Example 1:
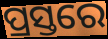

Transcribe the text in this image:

ପ୍ରସ୍ତରେ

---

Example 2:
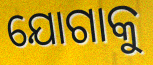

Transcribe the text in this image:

ଯୋଗାକୁ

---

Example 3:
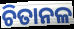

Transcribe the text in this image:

ଚିତାନଳ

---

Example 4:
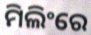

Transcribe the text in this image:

ମିଲିଂରେ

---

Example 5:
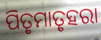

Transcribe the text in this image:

ପିତୃମାତୃହରା